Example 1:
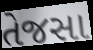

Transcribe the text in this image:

તેજસા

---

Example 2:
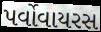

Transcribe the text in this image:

પર્વોવાયરસ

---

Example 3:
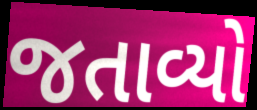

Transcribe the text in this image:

જતાવ્યો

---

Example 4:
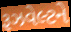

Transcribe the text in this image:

રૂઝવેલ્ટને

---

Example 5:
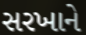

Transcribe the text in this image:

સરખાને